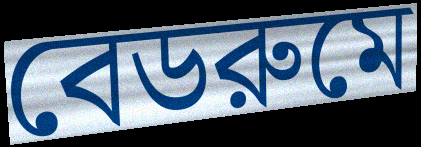
বেডরুমে